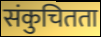
संकुचितता